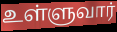
உள்ளுவார்